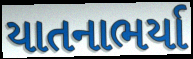
યાતનાભર્યા